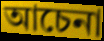
আচেনা